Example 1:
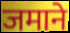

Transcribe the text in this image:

जमाने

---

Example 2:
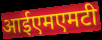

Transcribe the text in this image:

आईएमएमटी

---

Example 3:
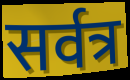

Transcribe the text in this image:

सर्वत्र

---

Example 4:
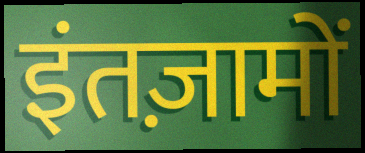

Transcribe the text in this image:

इंतज़ामों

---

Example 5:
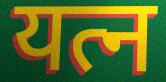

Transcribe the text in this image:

यत्न